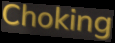
Choking